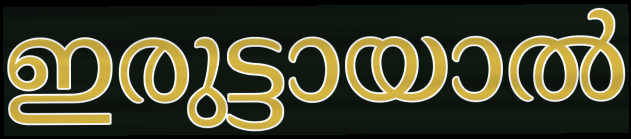
ഇരുട്ടായാൽ